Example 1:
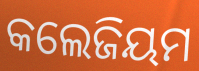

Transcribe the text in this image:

କଲେଜିୟମ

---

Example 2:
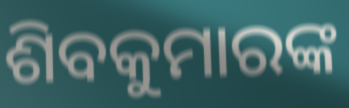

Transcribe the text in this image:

ଶିବକୁମାରଙ୍କ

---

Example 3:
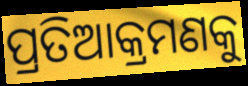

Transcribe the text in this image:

ପ୍ରତିଆକ୍ରମଣକୁ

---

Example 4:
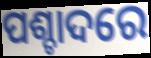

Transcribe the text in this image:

ପଶ୍ଚାଦରେ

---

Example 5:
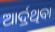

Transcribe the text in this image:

ଆର୍ଦ୍ରଥିବା